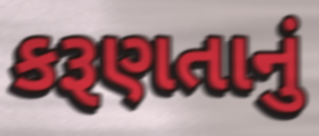
કરૂણતાનું